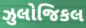
ઝુલોજિકલ